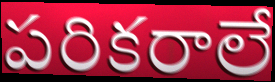
పరికరాలే